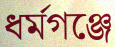
ধর্মগঞ্জে